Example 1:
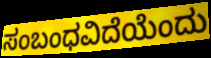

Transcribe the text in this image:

ಸಂಬಂಧವಿದೆಯೆಂದು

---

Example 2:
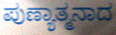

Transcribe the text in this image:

ಪುಣ್ಯಾತ್ಮನಾದ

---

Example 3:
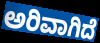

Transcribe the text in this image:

ಅರಿವಾಗಿದೆ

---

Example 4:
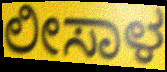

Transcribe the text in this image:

ಲೀಸಾಳ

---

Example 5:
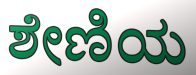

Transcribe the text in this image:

ಶೇಣಿಯ